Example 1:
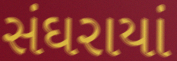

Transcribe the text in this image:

સંઘરાયાં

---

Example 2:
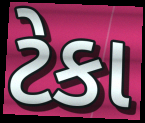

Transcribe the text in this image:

ટેકા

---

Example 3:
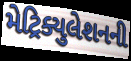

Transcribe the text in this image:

મેટ્રિક્યુલેશનની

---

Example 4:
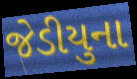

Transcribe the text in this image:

જેડીયુના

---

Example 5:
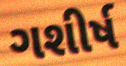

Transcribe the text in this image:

ગશીર્ષ